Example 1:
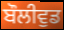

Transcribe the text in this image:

ਬੌਲੀਵੁਡ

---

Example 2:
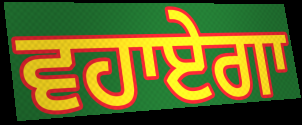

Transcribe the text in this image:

ਵਹਾਏਗਾ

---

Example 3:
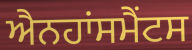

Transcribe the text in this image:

ਐਨਹਾਂਸਮੈਂਟਸ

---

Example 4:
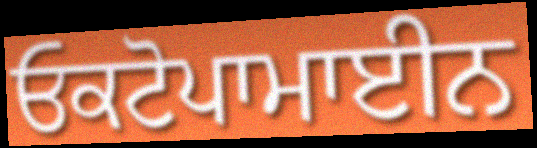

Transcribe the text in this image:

ਓਕਟੋਪਾਮਾਈਨ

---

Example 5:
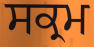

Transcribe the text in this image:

ਸਕ੍ਰਮ